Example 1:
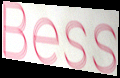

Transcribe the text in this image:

Bess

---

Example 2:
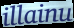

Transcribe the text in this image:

illainu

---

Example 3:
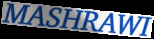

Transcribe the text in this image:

MASHRAWI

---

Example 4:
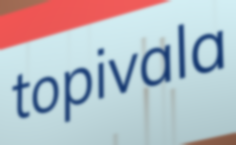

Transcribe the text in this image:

topivala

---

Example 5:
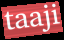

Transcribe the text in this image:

taaji